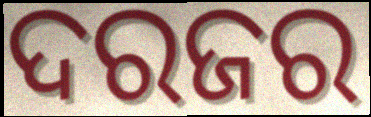
ଦରଜର